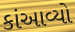
કાંઆવ્યો